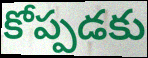
కోప్పడకు